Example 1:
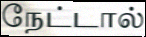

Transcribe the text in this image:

நேட்டால்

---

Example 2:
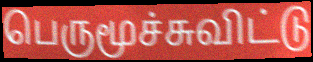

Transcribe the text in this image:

பெருமூச்சுவிட்டு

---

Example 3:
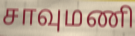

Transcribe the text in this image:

சாவுமணி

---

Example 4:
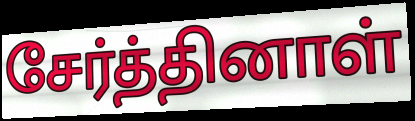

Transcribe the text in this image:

சேர்த்தினாள்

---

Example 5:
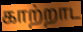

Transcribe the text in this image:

காற்றாட